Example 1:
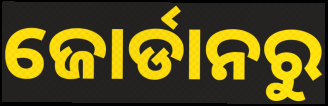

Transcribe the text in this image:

ଜୋର୍ଡାନରୁ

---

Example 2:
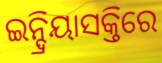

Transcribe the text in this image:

ଇନ୍ଦ୍ରିୟାସକ୍ତିରେ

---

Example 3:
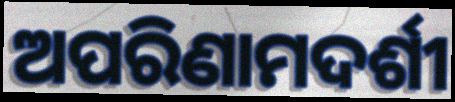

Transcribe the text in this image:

ଅପରିଣାମଦର୍ଶୀ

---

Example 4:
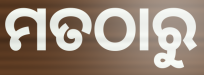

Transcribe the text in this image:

ମତଠାରୁ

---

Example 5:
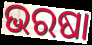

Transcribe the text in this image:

ଭରଷା